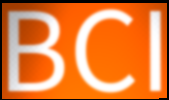
BCI